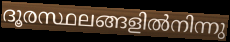
ദൂരസ്ഥലങ്ങളിൽനിന്നു